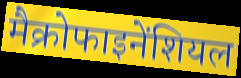
मैक्रोफाइनेंशियल